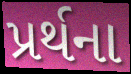
પ્રર્થના